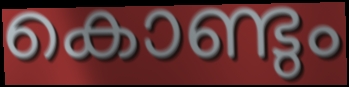
കൊണ്ടും